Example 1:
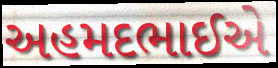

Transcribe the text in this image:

અહમદભાઈએ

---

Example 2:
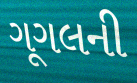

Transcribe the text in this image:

ગૂગલની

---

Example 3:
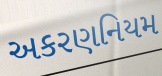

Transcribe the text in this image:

અકરણનિયમ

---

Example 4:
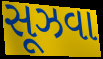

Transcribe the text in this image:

સૂઝવા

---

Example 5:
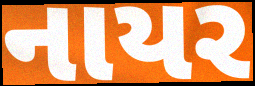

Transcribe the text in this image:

નાયર